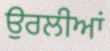
ਉਰਲੀਆਂ